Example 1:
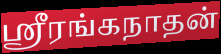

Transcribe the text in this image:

ஸ்ரீரங்கநாதன்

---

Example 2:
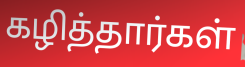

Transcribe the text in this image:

கழித்தார்கள்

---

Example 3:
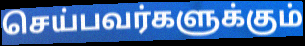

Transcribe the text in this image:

செய்பவர்களுக்கும்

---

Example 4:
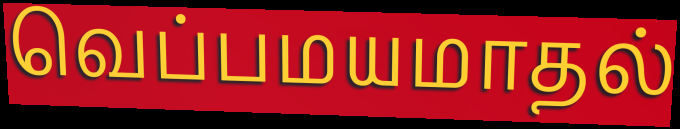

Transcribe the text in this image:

வெப்பமயமாதல்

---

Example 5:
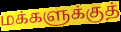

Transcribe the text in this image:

மக்களுக்குத்